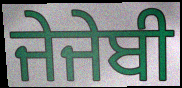
ਜੇਜੇਬੀ